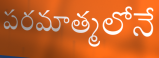
పరమాత్మలోనే